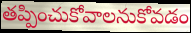
తప్పించుకోవాలనుకోవడం